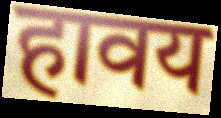
हावय